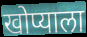
खोप्याला